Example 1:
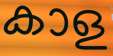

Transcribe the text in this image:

കാള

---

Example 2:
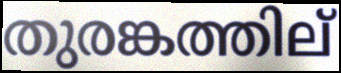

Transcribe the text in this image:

തുരങ്കത്തില്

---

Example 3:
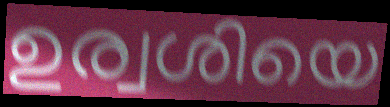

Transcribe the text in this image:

ഉര്വശിയെ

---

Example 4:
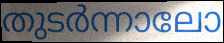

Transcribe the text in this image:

തുടർന്നാലോ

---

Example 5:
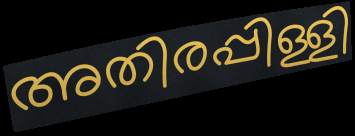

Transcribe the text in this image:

അതിരപ്പിള്ളി